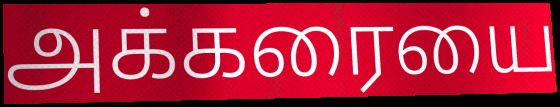
அக்கரையை